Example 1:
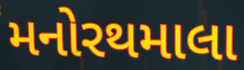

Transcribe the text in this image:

મનોરથમાલા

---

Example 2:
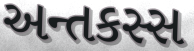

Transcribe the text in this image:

અન્તકસ્સ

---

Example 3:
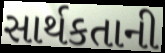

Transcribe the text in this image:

સાર્થકતાની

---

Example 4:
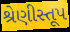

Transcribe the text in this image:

શ્રેણીસ્તૂપ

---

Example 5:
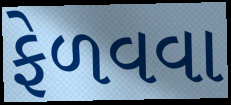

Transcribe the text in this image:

ફેળવવા